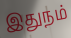
இதுநம்